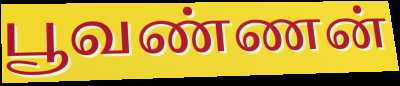
பூவண்ணன்